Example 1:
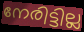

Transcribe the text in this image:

നേരിട്ടില്ല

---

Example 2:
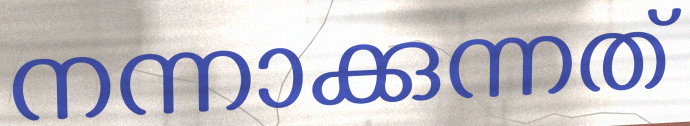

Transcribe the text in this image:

നന്നാക്കുന്നത്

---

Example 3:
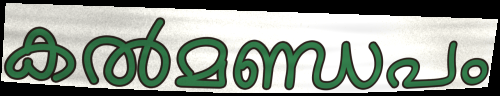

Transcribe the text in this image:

കൽമണ്ഡപം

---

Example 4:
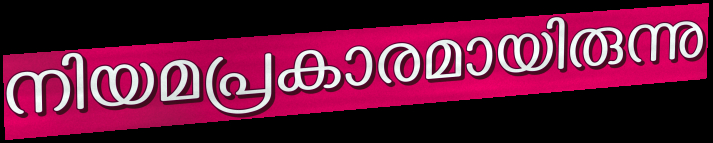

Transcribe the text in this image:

നിയമപ്രകാരമായിരുന്നു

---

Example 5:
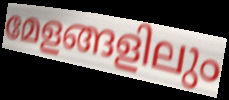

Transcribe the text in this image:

മേളങ്ങളിലും